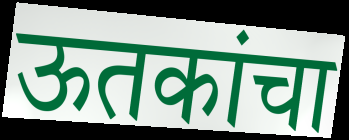
ऊतकांचा